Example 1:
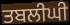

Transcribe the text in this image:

ਤਬਲੀਘੀ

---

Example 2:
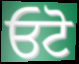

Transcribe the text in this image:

ਓਟੋ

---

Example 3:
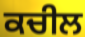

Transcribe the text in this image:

ਕਚੀਲ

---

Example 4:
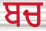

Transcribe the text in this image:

ਬਚ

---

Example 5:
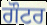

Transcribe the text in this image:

ਗੌਟਰ